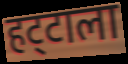
हट्‌टाला